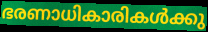
ഭരണാധികാരികൾക്കു